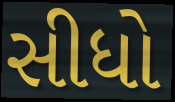
સીધો